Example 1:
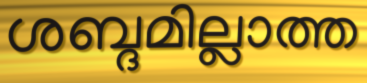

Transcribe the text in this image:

ശബ്ദമില്ലാത്ത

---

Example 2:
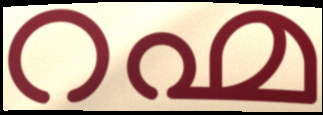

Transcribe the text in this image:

റഹ്മ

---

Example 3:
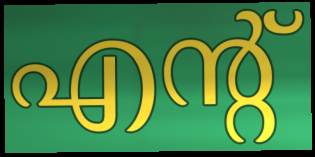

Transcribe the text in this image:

എന്റ്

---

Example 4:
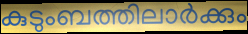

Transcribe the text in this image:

കുടുംബത്തിലാർക്കും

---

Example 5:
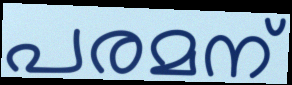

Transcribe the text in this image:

പരമന്